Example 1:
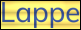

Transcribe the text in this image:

Lappe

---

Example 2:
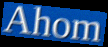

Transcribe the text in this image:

Ahom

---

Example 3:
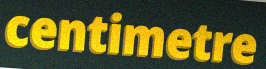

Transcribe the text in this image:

centimetre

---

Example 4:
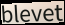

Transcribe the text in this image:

blevet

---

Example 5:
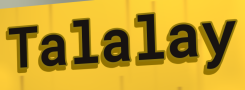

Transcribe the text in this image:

Talalay